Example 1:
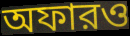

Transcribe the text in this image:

অফারও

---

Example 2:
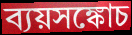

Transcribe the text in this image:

ব্যয়সঙ্কোচ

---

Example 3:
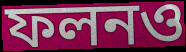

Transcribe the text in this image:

ফলনও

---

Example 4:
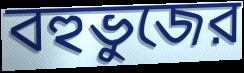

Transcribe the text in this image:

বহুভুজের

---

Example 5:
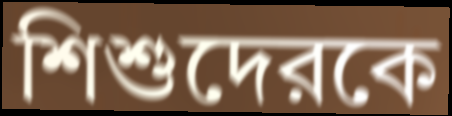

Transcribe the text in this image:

শিশুদেরকে